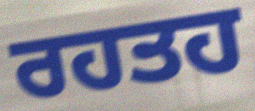
ਰਹਤਹ